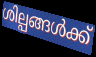
ശില്പങ്ങൾക്ക്